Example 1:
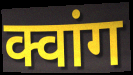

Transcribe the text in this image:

क्वांग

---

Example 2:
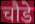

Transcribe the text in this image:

चौडे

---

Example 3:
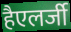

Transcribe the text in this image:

हैएलर्जी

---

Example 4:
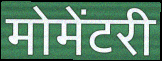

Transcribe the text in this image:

मोमेंटरी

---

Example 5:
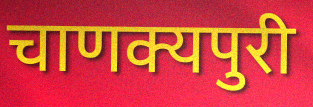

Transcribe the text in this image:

चाणक्यपुरी